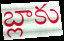
బ్లాకు